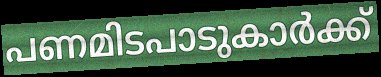
പണമിടപാടുകാർക്ക്